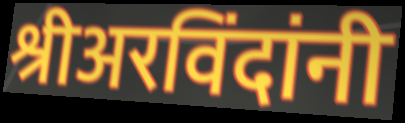
श्रीअरविंदांनी